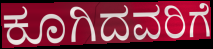
ಕೂಗಿದವರಿಗೆ